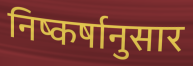
निष्कर्षानुसार